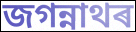
জগন্নাথৰ